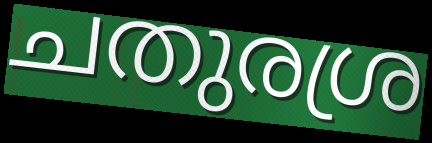
ചതുരശ്ര